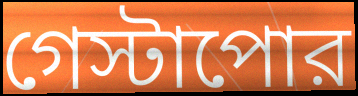
গেস্টাপোর